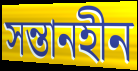
সন্তানহীন